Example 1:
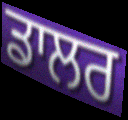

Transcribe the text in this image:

ਡਾਲਰ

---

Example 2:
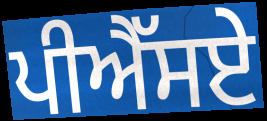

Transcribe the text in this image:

ਪੀਐੱਸਏ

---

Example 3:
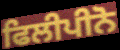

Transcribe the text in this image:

ਫਿਲੀਪੀਨੋ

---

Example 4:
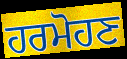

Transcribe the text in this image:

ਹਰਮੋਹਣ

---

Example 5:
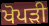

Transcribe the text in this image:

ਖੋਪੜੀ